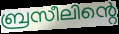
ബ്രസീലിന്റെ